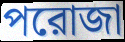
পরোজা